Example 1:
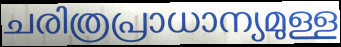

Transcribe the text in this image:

ചരിത്രപ്രാധാന്യമുള്ള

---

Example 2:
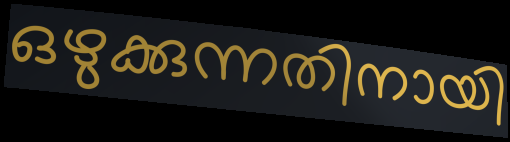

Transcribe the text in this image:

ഒഴുക്കുന്നതിനായി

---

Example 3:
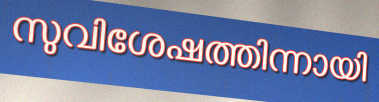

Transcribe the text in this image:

സുവിശേഷത്തിന്നായി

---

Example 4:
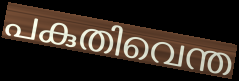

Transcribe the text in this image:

പകുതിവെന്ത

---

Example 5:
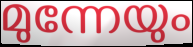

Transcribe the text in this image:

മുന്നേയും